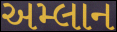
અમ્લાન